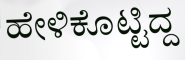
ಹೇಳಿಕೊಟ್ಟಿದ್ದ